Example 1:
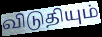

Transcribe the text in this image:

விடுதியும்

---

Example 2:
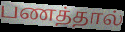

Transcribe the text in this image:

பணத்தால்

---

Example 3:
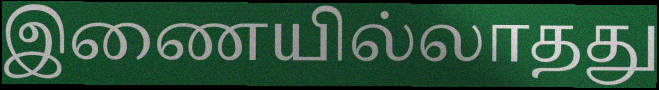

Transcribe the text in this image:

இணையில்லாதது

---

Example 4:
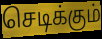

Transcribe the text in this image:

செடிக்கும்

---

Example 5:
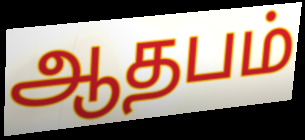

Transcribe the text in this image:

ஆதபம்